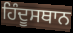
ਹਿੰਦੂਸਥਾਨ